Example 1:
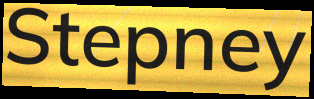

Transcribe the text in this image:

Stepney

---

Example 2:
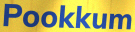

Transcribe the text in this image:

Pookkum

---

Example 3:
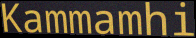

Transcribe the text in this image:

Kammamhi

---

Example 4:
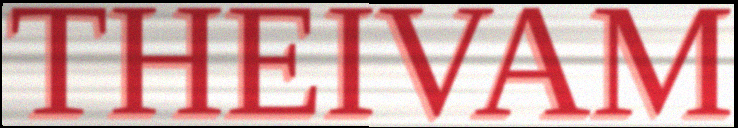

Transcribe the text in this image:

THEIVAM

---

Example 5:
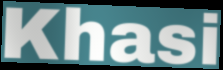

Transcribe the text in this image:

Khasi